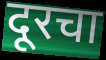
दूरचा